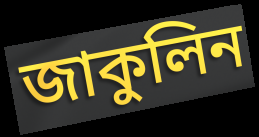
জাকুলিন